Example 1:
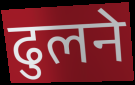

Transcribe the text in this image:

ढुलने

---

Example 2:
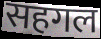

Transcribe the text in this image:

सहगल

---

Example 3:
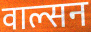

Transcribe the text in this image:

वाल्सन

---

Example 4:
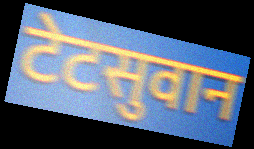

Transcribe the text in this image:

टेटसुवान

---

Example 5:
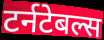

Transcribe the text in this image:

टर्नटेबल्स